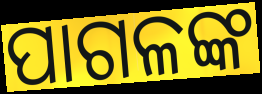
ପାଗଳଙ୍କ